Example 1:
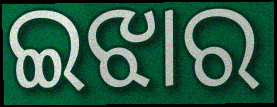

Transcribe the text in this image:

ଇଝାର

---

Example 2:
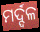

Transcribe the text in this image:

ମର୍ଦ୍ଦଳ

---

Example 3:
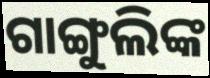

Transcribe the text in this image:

ଗାଙ୍ଗୁଲିଙ୍କ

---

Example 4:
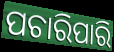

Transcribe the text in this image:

ପଚାରିପାରି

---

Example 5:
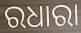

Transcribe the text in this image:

ରଧାରା